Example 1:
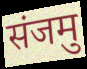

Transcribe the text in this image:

संजमु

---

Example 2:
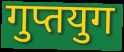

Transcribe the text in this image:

गुप्तयुग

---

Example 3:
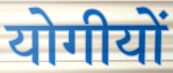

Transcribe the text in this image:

योगीयों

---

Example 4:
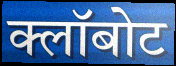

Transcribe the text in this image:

क्लॉबोट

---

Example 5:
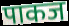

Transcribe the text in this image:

पाकज